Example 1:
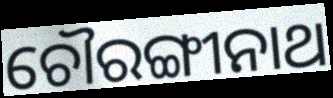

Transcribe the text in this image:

ଚୌରଙ୍ଗୀନାଥ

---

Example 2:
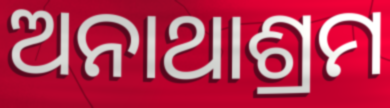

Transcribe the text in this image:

ଅନାଥାଶ୍ରମ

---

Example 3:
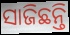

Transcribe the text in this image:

ସାଜିଛନ୍ତି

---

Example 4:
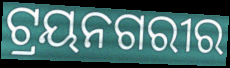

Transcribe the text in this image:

ଟ୍ରୟନଗରୀର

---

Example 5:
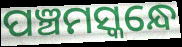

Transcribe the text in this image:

ପଞ୍ଚମସ୍କନ୍ଧେ